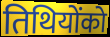
तिथियोंको